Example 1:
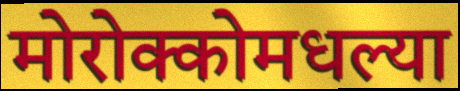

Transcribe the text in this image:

मोरोक्कोमधल्या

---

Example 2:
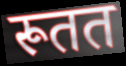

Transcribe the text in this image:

रूतत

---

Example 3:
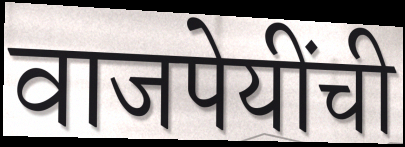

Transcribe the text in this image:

वाजपेयींची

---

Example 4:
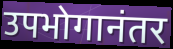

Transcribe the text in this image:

उपभोगानंतर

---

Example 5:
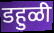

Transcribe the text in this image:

डहुळी